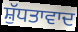
ਸ਼ੁੱਧਤਾਵਾਦ